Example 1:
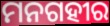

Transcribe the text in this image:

ମନଗହୀର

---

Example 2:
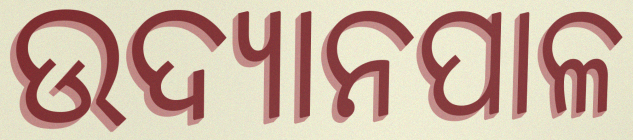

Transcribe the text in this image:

ଉଦ୍ୟାନପାଳ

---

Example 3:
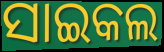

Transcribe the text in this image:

ସାଇକଲ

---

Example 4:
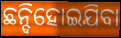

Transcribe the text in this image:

ଛନ୍ଦିହୋଇଯିବା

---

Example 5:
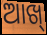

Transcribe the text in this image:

ଆଖ୍